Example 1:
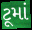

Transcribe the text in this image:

ટૂમાં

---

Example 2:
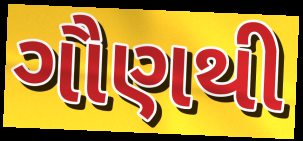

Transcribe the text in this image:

ગૌણથી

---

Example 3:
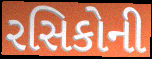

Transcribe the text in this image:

રસિકોની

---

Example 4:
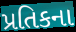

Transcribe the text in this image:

પ્રતિકના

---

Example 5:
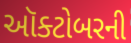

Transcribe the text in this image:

ઑક્ટોબરની